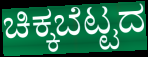
ಚಿಕ್ಕಬೆಟ್ಟದ